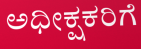
ಅಧೀಕ್ಷಕರಿಗೆ